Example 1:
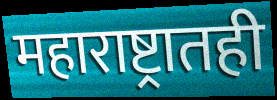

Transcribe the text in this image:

महाराष्ट्रातही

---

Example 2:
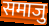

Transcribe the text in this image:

समाजु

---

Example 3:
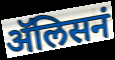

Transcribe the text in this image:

ॲलिसनं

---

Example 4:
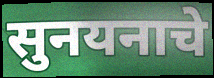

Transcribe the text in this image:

सुनयनाचे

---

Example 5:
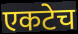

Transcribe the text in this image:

एकटेच